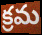
క్రమ